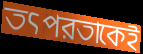
তৎপরতাকেই